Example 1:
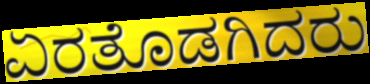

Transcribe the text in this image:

ಏರತೊಡಗಿದರು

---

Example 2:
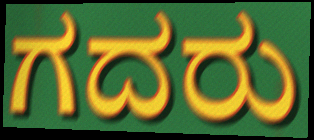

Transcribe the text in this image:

ಗದರು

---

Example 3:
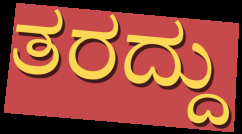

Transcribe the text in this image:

ತರದ್ದು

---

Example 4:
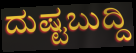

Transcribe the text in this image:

ದುಷ್ಟಬುದ್ದಿ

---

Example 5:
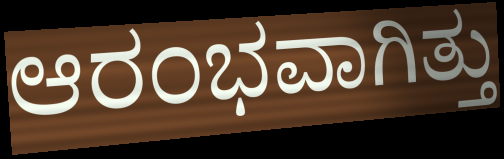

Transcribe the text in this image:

ಆರಂಭವಾಗಿತ್ತು